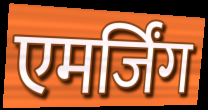
एमर्जिंग